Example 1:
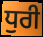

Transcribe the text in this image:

ਧੁਰੀ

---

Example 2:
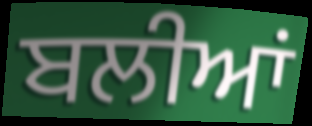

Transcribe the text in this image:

ਬਲੀਆਂ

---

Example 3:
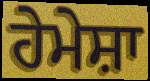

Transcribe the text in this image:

ਹੇਮੇਸ਼ਾ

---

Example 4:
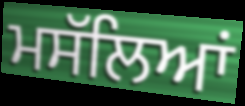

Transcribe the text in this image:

ਮਸੱਲਿਆਂ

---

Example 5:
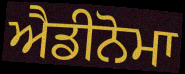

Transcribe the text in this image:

ਐਡੀਨੋਮਾ